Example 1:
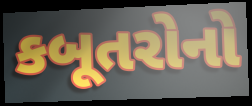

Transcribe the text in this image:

કબૂતરોનો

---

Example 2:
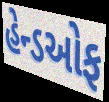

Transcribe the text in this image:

હેન્ડઓફ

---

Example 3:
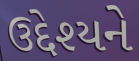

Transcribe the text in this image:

ઉદ્દેશ્યને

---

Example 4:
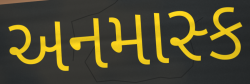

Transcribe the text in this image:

અનમાસ્ક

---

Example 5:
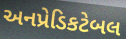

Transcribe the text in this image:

અનપ્રેડિકટેબલ